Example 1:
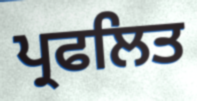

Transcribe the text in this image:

ਪ੍ਰਫਲਿਤ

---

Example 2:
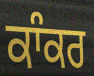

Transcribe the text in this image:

ਕਾੰਕਰ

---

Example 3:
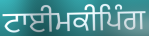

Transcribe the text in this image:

ਟਾਈਮਕੀਪਿੰਗ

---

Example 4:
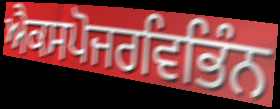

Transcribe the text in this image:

ਐਕਸਪੋਜਰਵਿਭਿੰਨ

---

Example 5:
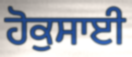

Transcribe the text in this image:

ਹੋਕੁਸਾਈ